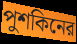
পুশকিনের